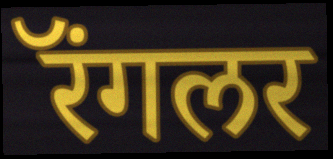
रॅंगलर